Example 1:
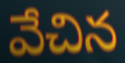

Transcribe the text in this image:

వేచిన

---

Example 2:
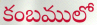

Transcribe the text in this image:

కంబములో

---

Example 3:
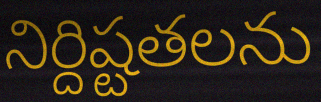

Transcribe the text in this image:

నిర్దిష్టతలను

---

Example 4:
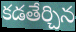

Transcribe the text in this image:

కడతేర్చిన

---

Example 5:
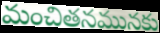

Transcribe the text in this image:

మంచితనమునకు